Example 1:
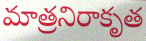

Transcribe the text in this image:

మాత్రనిరాకృత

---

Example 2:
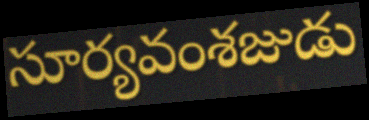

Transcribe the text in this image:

సూర్యవంశజుడు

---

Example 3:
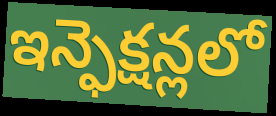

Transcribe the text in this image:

ఇన్ఫెక్షన్లలో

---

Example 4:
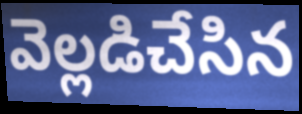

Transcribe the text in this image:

వెల్లడిచేసిన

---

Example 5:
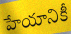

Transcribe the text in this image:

హేయానికీ